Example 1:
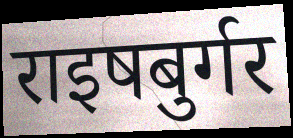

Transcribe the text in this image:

राइषबुर्गर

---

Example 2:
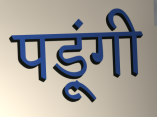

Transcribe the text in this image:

पड़ूंगी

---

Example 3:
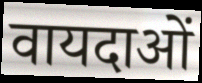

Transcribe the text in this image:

वायदाओं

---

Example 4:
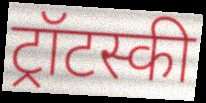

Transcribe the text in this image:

ट्रॉटस्की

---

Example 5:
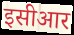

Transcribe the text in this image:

इसीआर